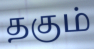
தகும்